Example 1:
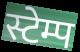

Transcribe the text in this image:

स्टेम्प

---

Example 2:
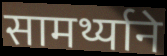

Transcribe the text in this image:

सामर्थ्याने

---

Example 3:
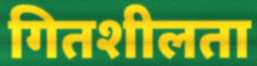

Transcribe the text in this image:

गितशीलता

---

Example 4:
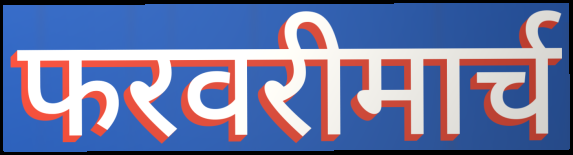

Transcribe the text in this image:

फरवरीमार्च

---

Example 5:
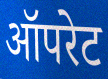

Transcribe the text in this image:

ऑपरेट